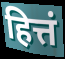
हित्तं